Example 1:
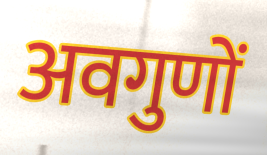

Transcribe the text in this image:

अवगुणों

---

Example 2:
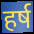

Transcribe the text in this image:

हर्ष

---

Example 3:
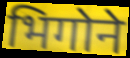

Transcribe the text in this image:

भिगोने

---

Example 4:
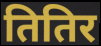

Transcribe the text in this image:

तितिर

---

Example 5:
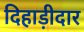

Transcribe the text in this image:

दिहाड़ीदार